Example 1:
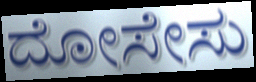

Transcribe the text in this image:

ದೋಸೇಸು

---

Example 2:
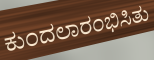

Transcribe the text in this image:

ಕುಂದಲಾರಂಭಿಸಿತು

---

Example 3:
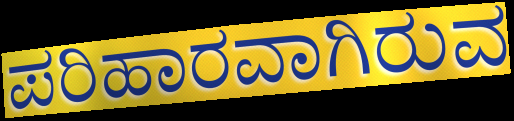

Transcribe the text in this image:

ಪರಿಹಾರವಾಗಿರುವ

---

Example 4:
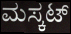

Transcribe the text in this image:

ಮಸ್ಕಟ್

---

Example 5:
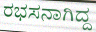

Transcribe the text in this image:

ರಭಸನಾಗಿದ್ದ